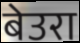
बेउरा